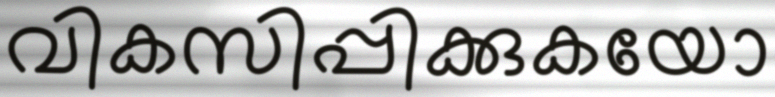
വികസിപ്പിക്കുകയോ